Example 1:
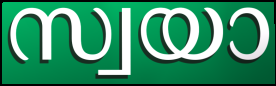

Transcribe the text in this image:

സ്വയാ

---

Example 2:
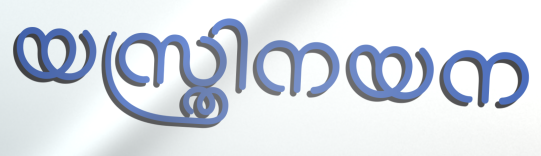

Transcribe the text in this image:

യസ്ത്രിനയന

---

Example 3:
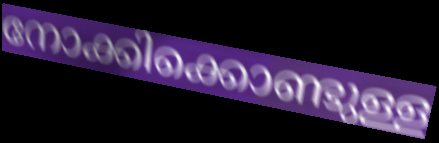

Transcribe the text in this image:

നോക്കിക്കൊണ്ടുള്ള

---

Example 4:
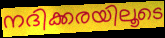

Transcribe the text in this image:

നദിക്കരയിലൂടെ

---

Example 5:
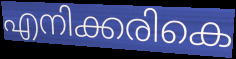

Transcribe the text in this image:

എനിക്കരികെ